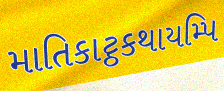
માતિકાટ્ઠકથાયમ્પિ